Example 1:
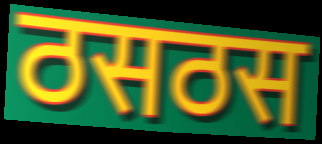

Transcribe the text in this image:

ठसठस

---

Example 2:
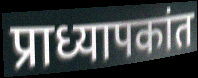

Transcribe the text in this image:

प्राध्यापकांत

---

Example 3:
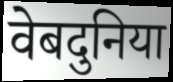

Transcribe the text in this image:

वेबदुनिया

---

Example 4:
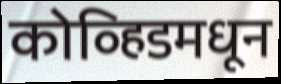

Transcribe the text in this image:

कोव्हिडमधून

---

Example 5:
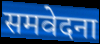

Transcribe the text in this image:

समवेदना